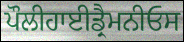
ਪੌਲੀਹਾਈਡ੍ਰੈਮਨੀਓਸ